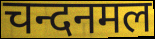
चन्दनमल